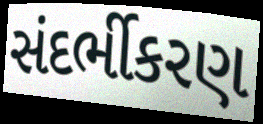
સંદર્ભીકરણ